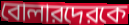
বোলারদেরকে